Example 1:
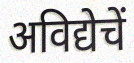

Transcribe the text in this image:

अविद्येचें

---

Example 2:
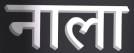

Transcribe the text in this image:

नाला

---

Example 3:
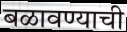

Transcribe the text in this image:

बळावण्याची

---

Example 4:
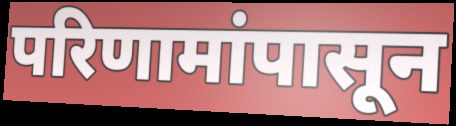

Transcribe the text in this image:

परिणामांपासून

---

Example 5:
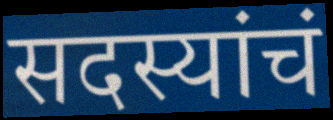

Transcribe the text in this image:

सदस्यांचं